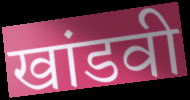
खांडवी